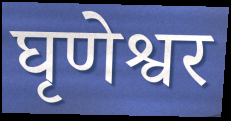
घृणेश्वर